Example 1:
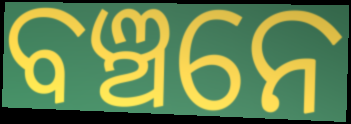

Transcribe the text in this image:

ବଞ୍ଚନେ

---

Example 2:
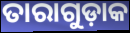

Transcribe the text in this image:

ତାରାଗୁଡ଼ାକ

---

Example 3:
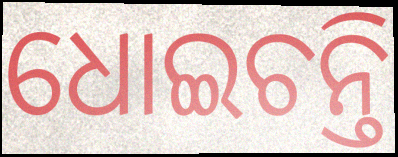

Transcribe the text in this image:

ଧୋଇଚନ୍ତି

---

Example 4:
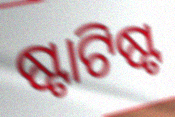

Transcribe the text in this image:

ଷ୍ଟାଟିଷ୍ଟ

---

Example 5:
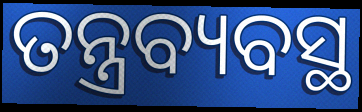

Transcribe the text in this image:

ତନ୍ତ୍ରବ୍ୟବସ୍ଥ